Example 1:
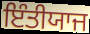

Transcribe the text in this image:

ਇੰਤੀਯਾਜ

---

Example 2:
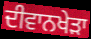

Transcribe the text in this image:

ਦੀਵਾਨਖੇੜਾ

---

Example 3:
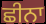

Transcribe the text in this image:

ਛੀਨਾ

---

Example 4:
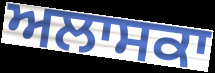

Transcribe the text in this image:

ਅਲਾਸਕਾ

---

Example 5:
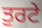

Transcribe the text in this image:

ਤੁਰਟੇ